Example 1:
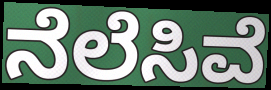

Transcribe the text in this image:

ನೆಲೆಸಿವೆ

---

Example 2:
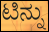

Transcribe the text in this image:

ಟಿನ್ನು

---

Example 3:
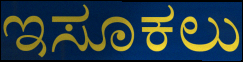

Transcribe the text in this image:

ಇಸೂಕಲು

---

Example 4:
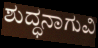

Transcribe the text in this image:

ಶುದ್ಧನಾಗುವಿ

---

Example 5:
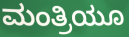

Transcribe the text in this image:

ಮಂತ್ರಿಯೂ